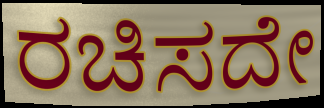
ರಚಿಸದೇ